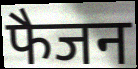
फैजन